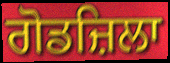
ਗੋਡਜ਼ਿਲਾ